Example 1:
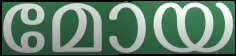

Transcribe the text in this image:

മോയ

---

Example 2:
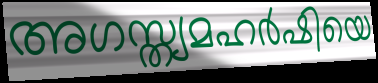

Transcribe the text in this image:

അഗസ്ത്യമഹർഷിയെ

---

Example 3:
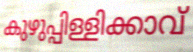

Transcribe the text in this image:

കുഴുപ്പിള്ളിക്കാവ്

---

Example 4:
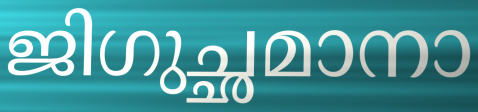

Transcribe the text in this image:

ജിഗുച്ഛമാനാ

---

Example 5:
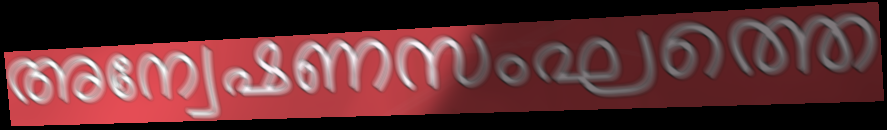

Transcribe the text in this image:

അന്വേഷണസംഘത്തെ